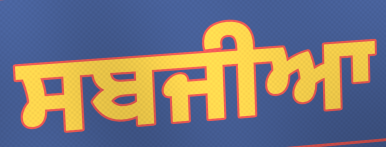
ਸਬਜੀਆ